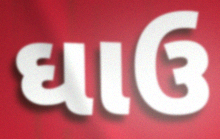
ઘાઉ